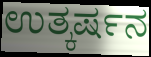
ಉತ್ಕರ್ಷನ